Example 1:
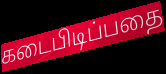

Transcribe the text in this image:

கடைபிடிப்பதை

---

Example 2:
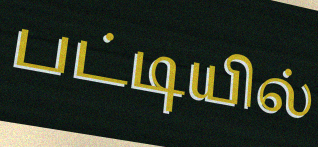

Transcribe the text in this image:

பட்டியில்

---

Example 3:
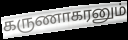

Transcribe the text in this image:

கருணாகரனும்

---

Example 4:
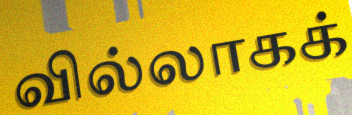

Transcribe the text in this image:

வில்லாகக்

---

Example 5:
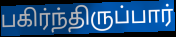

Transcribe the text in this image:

பகிர்ந்திருப்பார்